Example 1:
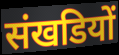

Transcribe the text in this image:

संखडियों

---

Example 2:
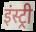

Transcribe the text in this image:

इंस्ट्री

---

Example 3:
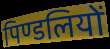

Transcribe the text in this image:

पिण्डलियों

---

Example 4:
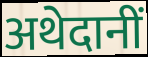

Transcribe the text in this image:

अथेदानीं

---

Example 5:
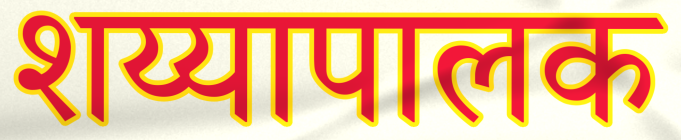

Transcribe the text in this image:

शय्यापालक